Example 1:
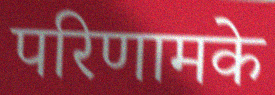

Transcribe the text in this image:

परिणामके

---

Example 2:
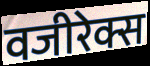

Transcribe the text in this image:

वजीरेक्स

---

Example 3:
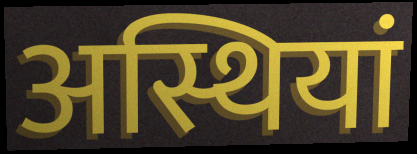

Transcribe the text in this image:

अस्थियां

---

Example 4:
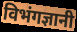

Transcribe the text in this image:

विभंगज्ञानी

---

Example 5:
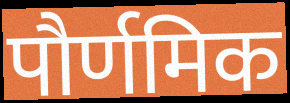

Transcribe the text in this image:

पौर्णमिक